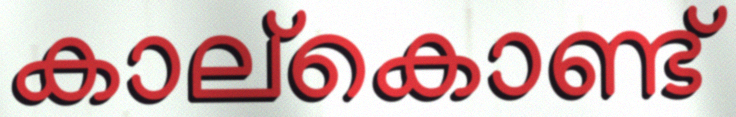
കാല്കൊണ്ട്